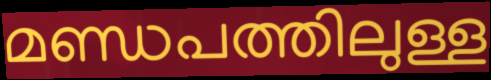
മണ്ഡപത്തിലുള്ള